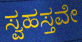
ಸ್ವಹಸ್ತವೇ